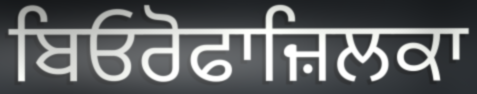
ਬਿਓਰੋਫਾਜ਼ਿਲਕਾ